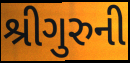
શ્રીગુરુની